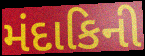
મંદાકિની